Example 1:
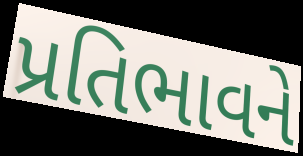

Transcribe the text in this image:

પ્રતિભાવને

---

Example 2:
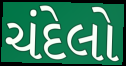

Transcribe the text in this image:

ચંદેલો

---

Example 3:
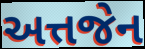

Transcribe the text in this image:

અત્તજેન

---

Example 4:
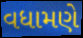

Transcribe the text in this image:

વધામણે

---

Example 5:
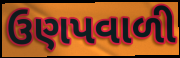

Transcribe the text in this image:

ઉણપવાળી